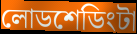
লোডশেডিংটা